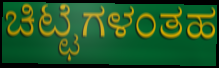
ಚಿಟ್ಟೆಗಳಂತಹ